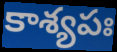
కాశ్యపః